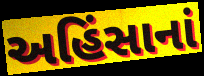
અહિંસાનાં